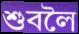
শুবলৈ